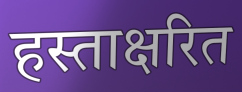
हस्ताक्षरित